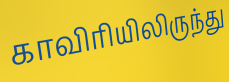
காவிரியிலிருந்து